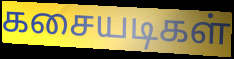
கசையடிகள்